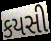
કયસી